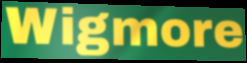
Wigmore